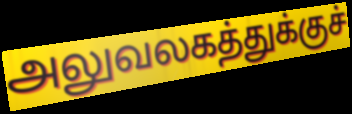
அலுவலகத்துக்குச்